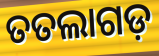
ତତଲାଗଡ଼